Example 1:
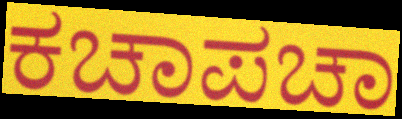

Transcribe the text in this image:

ಕಚಾಪಚಾ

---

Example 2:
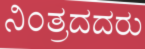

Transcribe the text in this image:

ನಿಂತ್ರದದರು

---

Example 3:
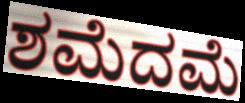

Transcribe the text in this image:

ಶಮೆದಮೆ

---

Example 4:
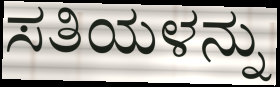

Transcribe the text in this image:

ಸತಿಯಳನ್ನು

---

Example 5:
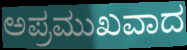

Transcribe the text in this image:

ಅಪ್ರಮುಖವಾದ